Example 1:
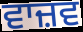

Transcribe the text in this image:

ਵਾਜ਼ਵ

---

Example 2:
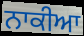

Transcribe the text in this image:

ਨਾਕੀਆ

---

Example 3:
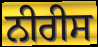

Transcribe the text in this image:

ਨੀਰੀਸ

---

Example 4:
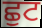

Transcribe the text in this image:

ਛੁਟ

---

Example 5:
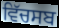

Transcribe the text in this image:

ਵਿੱਚਸਬ